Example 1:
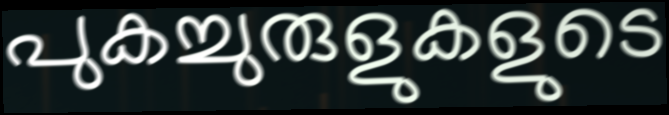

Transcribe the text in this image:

പുകച്ചുരുളുകളുടെ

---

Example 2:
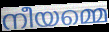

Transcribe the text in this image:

നീയമ്മെ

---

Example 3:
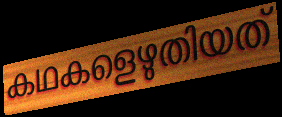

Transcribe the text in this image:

കഥകളെഴുതിയത്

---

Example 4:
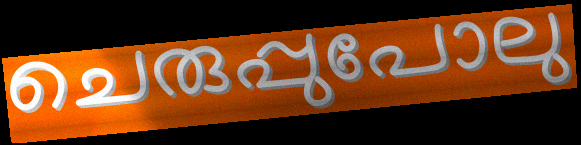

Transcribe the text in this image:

ചെരുപ്പുപോലു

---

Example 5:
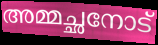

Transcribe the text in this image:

അമ്മച്ഛനോട്